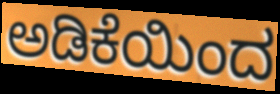
ಅಡಿಕೆಯಿಂದ